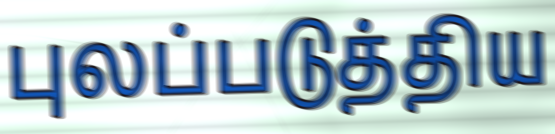
புலப்படுத்திய